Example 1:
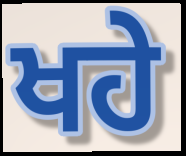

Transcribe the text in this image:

ਖਹੇ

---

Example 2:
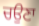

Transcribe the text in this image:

ਚਉਣਾ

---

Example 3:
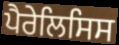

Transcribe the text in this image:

ਪੈਰੇਲਿਸਿਸ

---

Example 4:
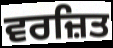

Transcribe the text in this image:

ਵਰਜ਼ਿਤ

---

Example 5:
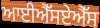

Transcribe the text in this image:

ਆਈਐੱਸਏਐੱਸ